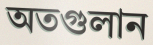
অতগুলান